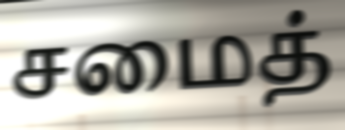
சமைத்